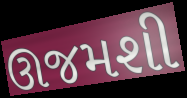
ઊજમશી